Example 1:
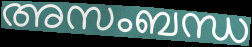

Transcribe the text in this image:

അസംബന്ധ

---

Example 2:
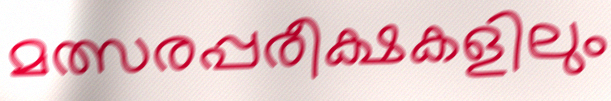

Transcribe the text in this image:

മത്സരപ്പരീക്ഷകളിലും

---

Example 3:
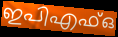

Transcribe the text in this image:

ഇപിഎഫ്ഒ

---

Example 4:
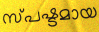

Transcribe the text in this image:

സ്പഷ്ടമായ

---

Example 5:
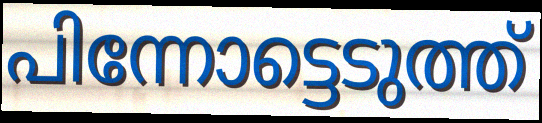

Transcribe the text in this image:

പിന്നോട്ടെടുത്ത്